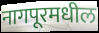
नागपूरमधील